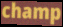
champ